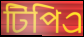
টিপিএ